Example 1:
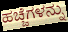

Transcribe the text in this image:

ಹಚ್ಚೆಗಳನ್ನು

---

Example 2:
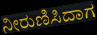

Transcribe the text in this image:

ನೀರುಣಿಸಿದಾಗ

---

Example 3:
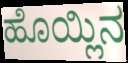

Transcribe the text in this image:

ಹೊಯ್ಲಿನ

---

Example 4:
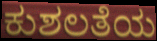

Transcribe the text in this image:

ಕುಶಲತೆಯ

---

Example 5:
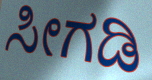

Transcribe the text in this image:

ಸೀಗಡಿ